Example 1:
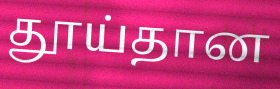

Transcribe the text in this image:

தூய்தான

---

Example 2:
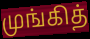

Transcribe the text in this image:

முங்கித்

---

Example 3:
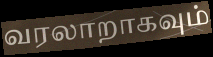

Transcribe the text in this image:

வரலாறாகவும்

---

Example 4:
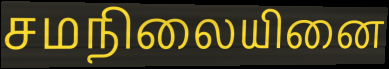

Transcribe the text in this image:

சமநிலையினை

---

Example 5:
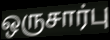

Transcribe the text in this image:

ஒருசார்பு